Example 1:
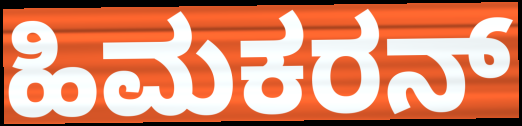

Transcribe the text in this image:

ಹಿಮಕರನ್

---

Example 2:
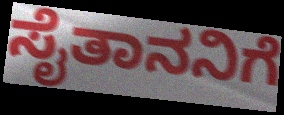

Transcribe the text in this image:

ಸೈತಾನನಿಗೆ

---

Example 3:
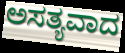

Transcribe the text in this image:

ಅಸತ್ಯವಾದ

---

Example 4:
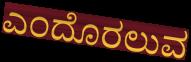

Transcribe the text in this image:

ಎಂದೊರಲುವ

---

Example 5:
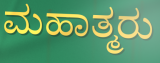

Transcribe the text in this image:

ಮಹಾತ್ಮರು